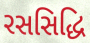
રસસિદ્ધિ